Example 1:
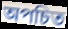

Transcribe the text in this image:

অপচিত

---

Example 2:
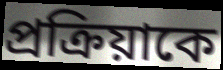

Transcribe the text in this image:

প্রক্রিয়াকে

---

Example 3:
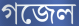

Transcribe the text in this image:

গজেল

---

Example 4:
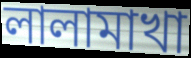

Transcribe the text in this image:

লালামাখা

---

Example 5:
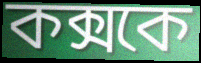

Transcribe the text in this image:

কক্সকে